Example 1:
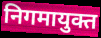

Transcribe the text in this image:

निगमायुक्त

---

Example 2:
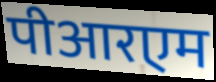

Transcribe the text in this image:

पीआरएम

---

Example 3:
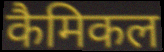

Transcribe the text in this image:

कैमिकल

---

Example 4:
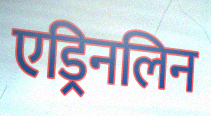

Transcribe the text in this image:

एड्रिनलिन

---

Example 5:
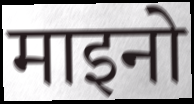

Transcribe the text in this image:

माइनो